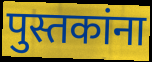
पुस्तकांना